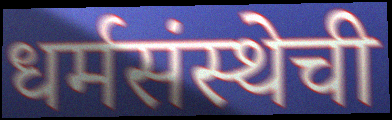
धर्मसंस्थेची